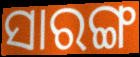
ସାରଙ୍ଗ